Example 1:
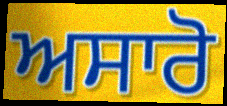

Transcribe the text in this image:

ਅਸਾਰੋ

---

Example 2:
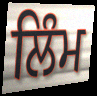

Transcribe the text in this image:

ਲਿੰਮ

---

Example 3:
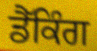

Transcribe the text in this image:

ਡੈੱਕਿੰਗ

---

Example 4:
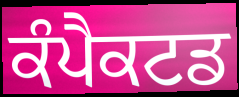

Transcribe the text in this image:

ਕੰਪੈਕਟਡ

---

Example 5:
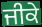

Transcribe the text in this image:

ਜੀਕੇ